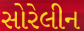
સોરેલીન